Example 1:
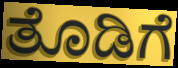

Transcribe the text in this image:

ತೊಡಿಗೆ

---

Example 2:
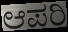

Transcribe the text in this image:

ಆಪರಿ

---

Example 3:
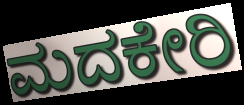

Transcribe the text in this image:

ಮದಕೇರಿ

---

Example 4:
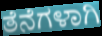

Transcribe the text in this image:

ತೆನೆಗಳಾಗಿ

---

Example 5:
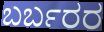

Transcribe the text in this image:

ಬರ್ಬರರ